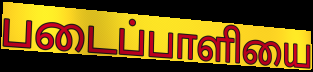
படைப்பாளியை